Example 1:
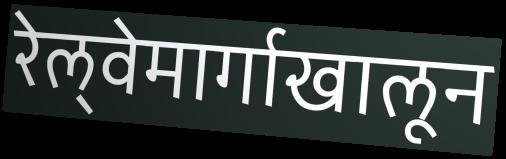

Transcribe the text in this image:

रेल्वेमार्गाखालून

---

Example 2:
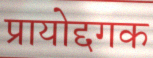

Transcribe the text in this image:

प्रायोद्दगक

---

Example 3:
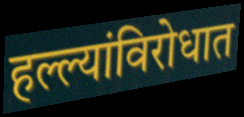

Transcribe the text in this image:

हल्ल्यांविरोधात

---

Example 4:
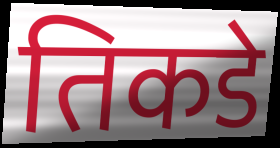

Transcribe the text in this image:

तिकडे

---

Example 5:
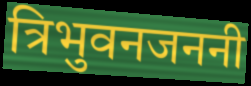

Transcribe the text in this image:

त्रिभुवनजननी